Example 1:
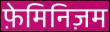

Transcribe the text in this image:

फ़ेमिनिज़म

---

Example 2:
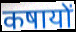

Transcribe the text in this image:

कषायों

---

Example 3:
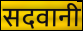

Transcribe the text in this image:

सदवानी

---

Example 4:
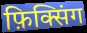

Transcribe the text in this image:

फ़िक्सिंग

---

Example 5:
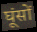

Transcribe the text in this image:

घूंसों